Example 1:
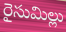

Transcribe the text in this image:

రైసుమిల్లు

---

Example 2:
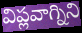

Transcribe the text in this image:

విప్లవాగ్నిని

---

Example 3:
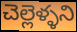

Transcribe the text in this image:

చెల్లెళ్ళని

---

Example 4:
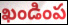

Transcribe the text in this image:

ఖండింప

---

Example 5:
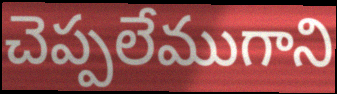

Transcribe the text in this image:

చెప్పలేముగాని